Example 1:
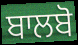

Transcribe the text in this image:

ਬਾਲਬੋ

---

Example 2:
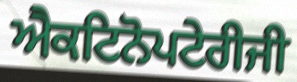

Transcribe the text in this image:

ਐਕਟਿਨੋਪਟੇਰੀਜੀ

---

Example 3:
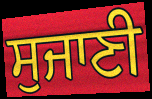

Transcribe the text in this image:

ਸੁਜਾਣੀ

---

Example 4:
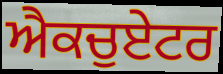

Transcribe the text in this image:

ਐਕਚੁਏਟਰ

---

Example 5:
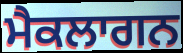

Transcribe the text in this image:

ਮੈਕਲਾਗਨ